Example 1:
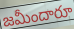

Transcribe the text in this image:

జమీందారూ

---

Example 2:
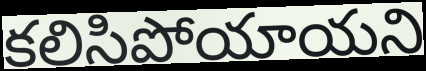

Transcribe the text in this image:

కలిసిపోయాయని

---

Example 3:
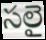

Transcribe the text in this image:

సలై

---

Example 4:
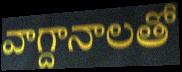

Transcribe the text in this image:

వాగ్దానాలతో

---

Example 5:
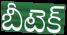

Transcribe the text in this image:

బీటెక్